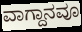
ವಾಗ್ದಾನವೂ